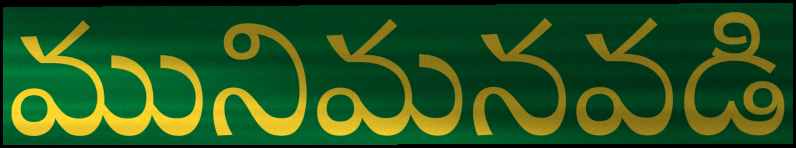
మునిమనవడి